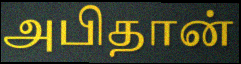
அபிதான்